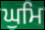
ਘੁਮਿ